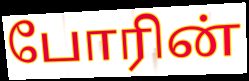
போரின்